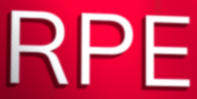
RPE